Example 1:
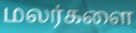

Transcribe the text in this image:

மலர்களை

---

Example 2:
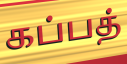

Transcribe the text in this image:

கப்பத்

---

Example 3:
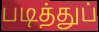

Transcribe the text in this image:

படித்துப்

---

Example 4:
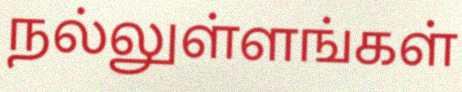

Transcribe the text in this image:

நல்லுள்ளங்கள்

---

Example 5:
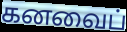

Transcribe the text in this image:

கனவைப்